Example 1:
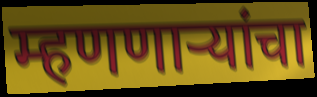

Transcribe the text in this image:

म्हणणाऱ्यांचा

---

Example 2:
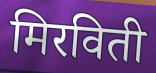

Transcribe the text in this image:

मिरविती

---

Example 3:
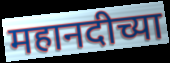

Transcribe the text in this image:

महानदीच्या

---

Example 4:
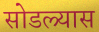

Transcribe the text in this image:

सोडल्यास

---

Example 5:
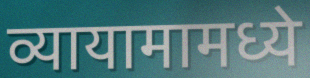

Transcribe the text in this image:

व्यायामामध्ये